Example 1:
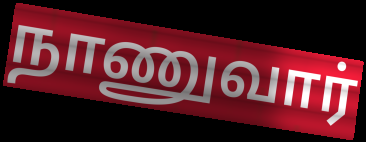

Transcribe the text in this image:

நாணுவார்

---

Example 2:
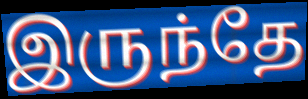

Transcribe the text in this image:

இருந்தே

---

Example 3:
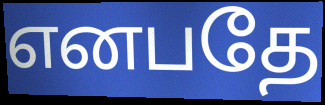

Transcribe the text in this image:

எனபதே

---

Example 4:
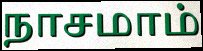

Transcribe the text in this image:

நாசமாம்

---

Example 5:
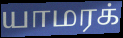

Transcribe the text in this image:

யாமரக்